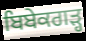
ਬਿਬੇਕਗੜ੍ਹ